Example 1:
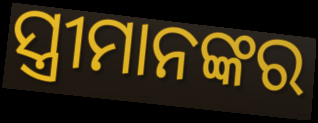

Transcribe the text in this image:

ସ୍ତ୍ରୀମାନଙ୍କର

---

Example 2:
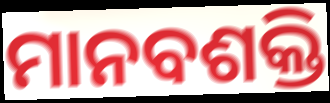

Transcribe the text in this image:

ମାନବଶକ୍ତି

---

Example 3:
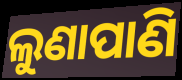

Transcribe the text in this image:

ଲୁଣାପାଣି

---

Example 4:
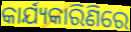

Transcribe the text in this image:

କାର୍ଯ୍ୟକାରିଣିରେ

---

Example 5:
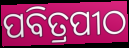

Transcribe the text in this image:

ପବିତ୍ରପୀଠ